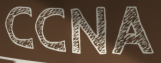
CCNA